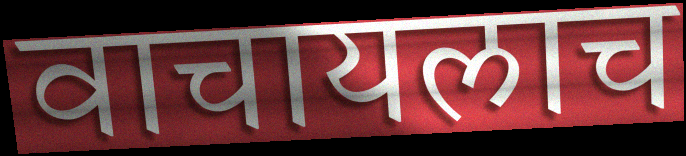
वाचायलाच